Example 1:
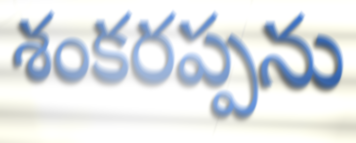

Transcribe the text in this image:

శంకరప్పను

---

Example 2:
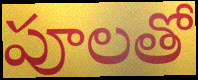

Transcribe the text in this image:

పూలతో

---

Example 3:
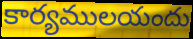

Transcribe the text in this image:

కార్యములయందు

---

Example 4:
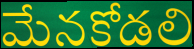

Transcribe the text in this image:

మేనకోడలి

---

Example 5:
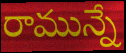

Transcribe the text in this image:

రామున్నే